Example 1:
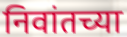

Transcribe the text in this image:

निवांतच्या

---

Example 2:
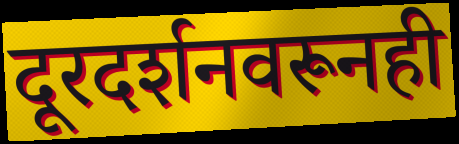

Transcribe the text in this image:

दूरदर्शनवरूनही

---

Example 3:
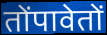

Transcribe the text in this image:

तोंपावेतों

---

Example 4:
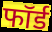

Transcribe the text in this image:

फॉर्ड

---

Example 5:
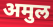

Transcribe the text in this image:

अमुल